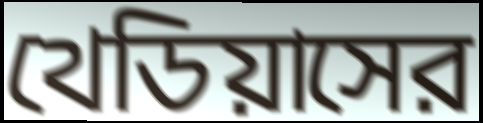
থেডিয়াসের